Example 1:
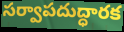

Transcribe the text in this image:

సర్వాపదుద్ధారక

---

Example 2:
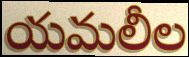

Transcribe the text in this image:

యమలీల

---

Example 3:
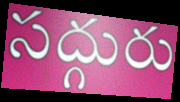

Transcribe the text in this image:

సద్గురు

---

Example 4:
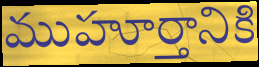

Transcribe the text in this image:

ముహూర్తానికి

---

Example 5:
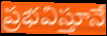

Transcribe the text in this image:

ప్రభవిస్తూనే